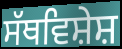
ਸੱਥਵਿਸ਼ੇਸ਼